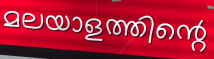
മലയാളത്തിന്റെ